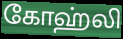
கோஹ்லி